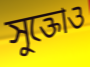
সুক্তোও